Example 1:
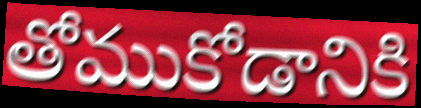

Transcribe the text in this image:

తోముకోడానికి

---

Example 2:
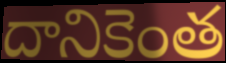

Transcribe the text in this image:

దానికెంత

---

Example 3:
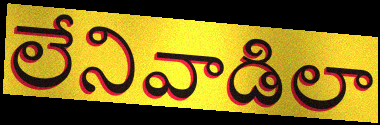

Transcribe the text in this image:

లేనివాడిలా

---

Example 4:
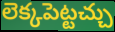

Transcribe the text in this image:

లెక్కపెట్టచ్చు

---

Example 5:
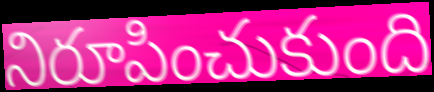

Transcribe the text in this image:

నిరూపించుకుంది